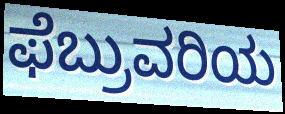
ಫೆಬ್ರುವರಿಯ